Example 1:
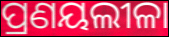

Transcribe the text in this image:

ପ୍ରଣୟଲୀଳା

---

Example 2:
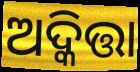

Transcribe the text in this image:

ଅଦ୍କିତ୍ତା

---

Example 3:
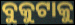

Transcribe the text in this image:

ବୁକୁଟାକୁ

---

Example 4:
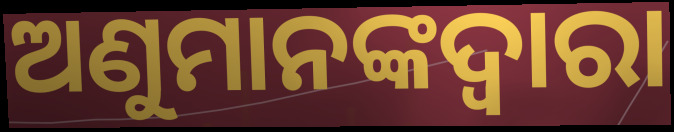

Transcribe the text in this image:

ଅଣୁମାନଙ୍କଦ୍ଵାରା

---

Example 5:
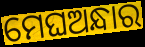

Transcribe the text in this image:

ମେଘଅନ୍ଧାର